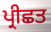
ਪ੍ਰੀਛਤ